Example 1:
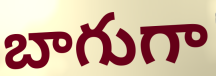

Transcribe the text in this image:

బాగుగా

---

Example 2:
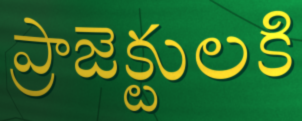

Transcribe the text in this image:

ప్రాజెక్టులకి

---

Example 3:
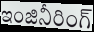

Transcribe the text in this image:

ఇంజినీరింగ్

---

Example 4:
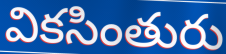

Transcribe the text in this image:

వికసింతురు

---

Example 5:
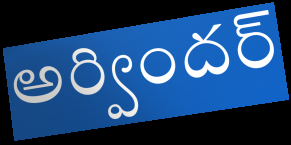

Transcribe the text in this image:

అర్విందర్